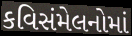
કવિસંમેલનોમાં